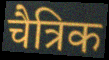
चैत्रिक